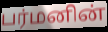
பர்மனின்